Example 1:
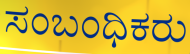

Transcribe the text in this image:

ಸಂಬಂಧಿಕರು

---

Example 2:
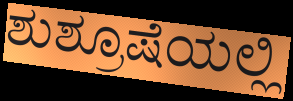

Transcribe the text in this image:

ಶುಶ್ರೂಷೆಯಲ್ಲಿ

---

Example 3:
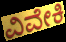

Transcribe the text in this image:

ವಿವೇಕಿ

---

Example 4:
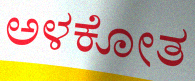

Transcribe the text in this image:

ಅಳಕೋತ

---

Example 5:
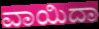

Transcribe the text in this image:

ವಾಯಿದಾ